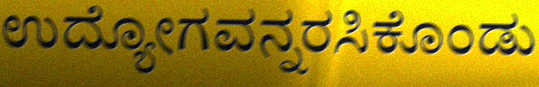
ಉದ್ಯೋಗವನ್ನರಸಿಕೊಂಡು